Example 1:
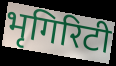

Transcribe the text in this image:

भृगिरिटी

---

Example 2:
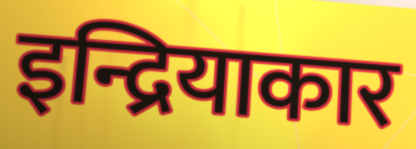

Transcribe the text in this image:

इन्द्रियाकार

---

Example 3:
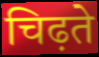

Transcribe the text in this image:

चिढ़ते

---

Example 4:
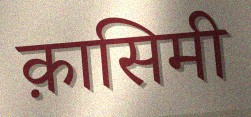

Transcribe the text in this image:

क़ासिमी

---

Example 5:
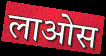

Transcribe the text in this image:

लाओस